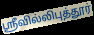
ஸ்ரீவில்லிபுத்தூர்